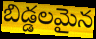
బిడ్డలమైన